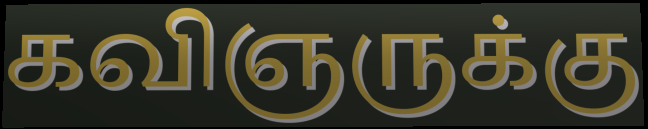
கவிஞருக்கு